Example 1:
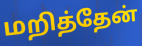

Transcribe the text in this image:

மறித்தேன்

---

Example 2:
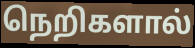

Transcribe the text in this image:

நெறிகளால்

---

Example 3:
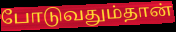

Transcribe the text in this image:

போடுவதும்தான்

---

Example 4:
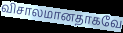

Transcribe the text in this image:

விசாலமானதாகவே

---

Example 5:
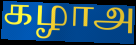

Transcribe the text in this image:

கழாஅ